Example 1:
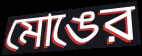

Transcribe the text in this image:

মোঙের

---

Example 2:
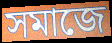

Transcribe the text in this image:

সমাজে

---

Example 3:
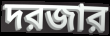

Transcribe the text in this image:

দরজার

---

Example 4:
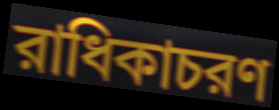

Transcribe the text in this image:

রাধিকাচরণ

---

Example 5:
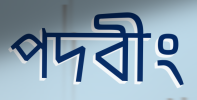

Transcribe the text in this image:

পদবীং